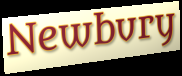
Newbury